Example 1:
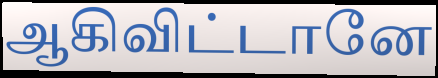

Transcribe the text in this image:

ஆகிவிட்டானே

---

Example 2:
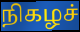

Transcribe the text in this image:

நிகழச்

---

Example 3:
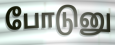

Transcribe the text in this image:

போடுனு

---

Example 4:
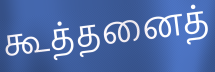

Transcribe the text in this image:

கூத்தனைத்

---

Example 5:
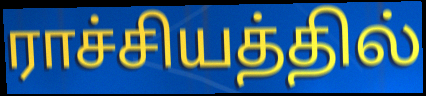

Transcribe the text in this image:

ராச்சியத்தில்